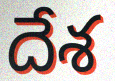
దేశ